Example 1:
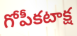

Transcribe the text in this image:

గోపీకటాక్ష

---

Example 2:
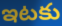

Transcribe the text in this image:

ఇటకు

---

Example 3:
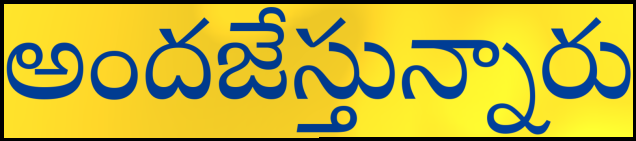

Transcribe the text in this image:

అందజేస్తున్నారు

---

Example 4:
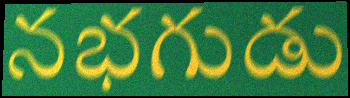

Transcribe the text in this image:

నభగుడు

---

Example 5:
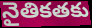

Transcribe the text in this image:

నైతికతకు